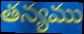
తన్యము